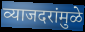
व्याजदरांमुळे